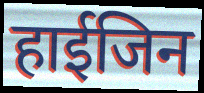
हाईजिन